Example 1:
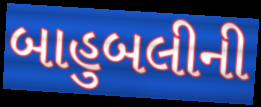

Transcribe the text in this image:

બાહુબલીની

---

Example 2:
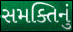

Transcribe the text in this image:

સમક્તિનું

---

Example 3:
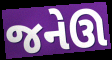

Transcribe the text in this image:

જનેઊ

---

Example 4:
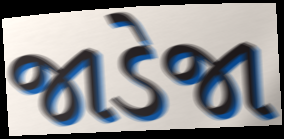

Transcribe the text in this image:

જાડેજા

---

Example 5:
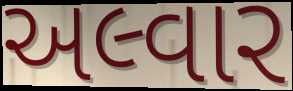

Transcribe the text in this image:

અલ્વાર